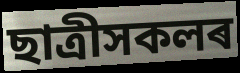
ছাত্ৰীসকলৰ